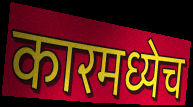
कारमध्येच